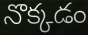
నొక్కడం